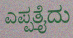
ಎಪ್ಪತ್ತೈದು